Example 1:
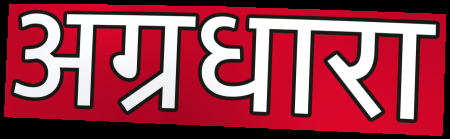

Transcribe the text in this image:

अग्रधारा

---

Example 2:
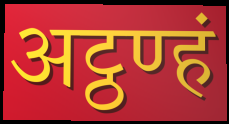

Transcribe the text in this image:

अट्ठण्हं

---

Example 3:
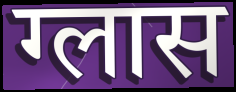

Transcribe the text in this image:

ग्लास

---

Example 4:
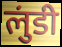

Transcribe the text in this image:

लुंडी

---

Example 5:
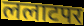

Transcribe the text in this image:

ललाटपर